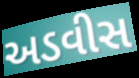
અડવીસ